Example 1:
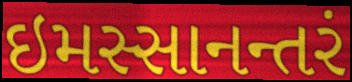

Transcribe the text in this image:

ઇમસ્સાનન્તરં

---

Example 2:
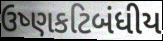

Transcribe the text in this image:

ઉષ્ણકટિબંધીય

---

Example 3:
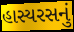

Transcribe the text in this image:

હાસ્યરસનું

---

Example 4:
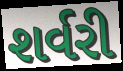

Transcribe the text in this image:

શર્વરી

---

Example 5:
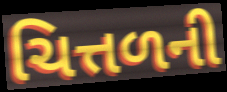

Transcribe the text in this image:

ચિત્તળની